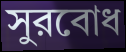
সুরবোধ